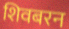
शिवबरन